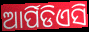
ଆର୍ପିଡିଏସି